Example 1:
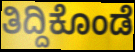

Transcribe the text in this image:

ತಿದ್ದಿಕೊಂಡೆ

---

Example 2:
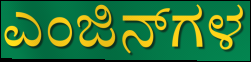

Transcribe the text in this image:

ಎಂಜಿನ್‌ಗಳ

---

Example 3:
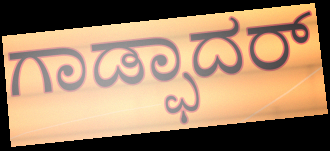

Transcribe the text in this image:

ಗಾಡ್ಫಾದರ್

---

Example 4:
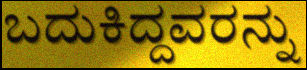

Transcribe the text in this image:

ಬದುಕಿದ್ದವರನ್ನು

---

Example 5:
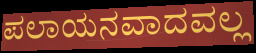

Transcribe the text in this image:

ಪಲಾಯನವಾದವಲ್ಲ